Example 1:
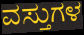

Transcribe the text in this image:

ವಸ್ತುಗಳ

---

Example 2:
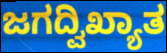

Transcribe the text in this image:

ಜಗದ್ವಿಖ್ಯಾತ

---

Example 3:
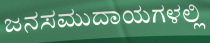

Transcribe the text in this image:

ಜನಸಮುದಾಯಗಳಲ್ಲಿ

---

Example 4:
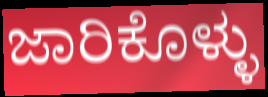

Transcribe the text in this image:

ಜಾರಿಕೊಳ್ಳು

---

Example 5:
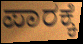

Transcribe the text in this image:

ಪಾರಕ್ಕೆ